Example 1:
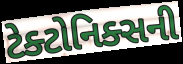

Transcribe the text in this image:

ટેક્ટોનિક્સની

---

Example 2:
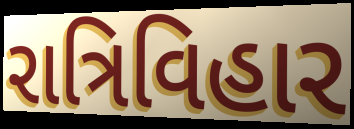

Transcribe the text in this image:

રાત્રિવિહાર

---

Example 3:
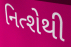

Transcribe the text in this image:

નિત્શેથી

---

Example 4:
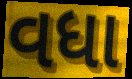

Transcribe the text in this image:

વધા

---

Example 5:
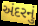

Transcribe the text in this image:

અંદરનું